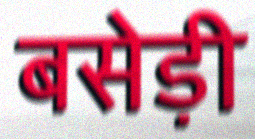
बसेड़ी